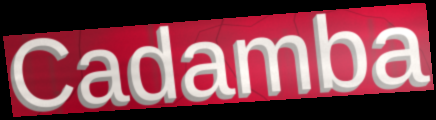
Cadamba